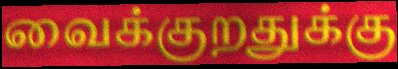
வைக்குறதுக்கு